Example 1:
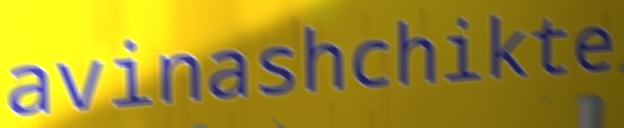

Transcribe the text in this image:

avinashchikte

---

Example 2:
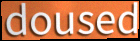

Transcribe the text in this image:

doused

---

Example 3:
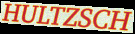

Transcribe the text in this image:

HULTZSCH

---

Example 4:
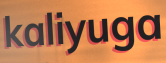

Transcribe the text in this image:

kaliyuga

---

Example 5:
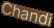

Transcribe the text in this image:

Chandi